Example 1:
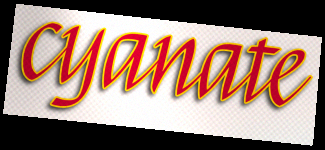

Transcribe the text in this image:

cyanate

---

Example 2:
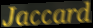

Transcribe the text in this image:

Jaccard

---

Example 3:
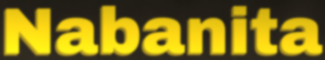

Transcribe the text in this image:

Nabanita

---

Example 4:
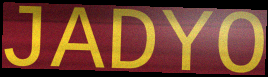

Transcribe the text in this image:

JADYO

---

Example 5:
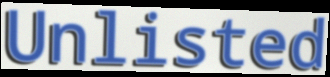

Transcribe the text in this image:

Unlisted